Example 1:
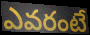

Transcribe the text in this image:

ఎవరంటే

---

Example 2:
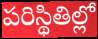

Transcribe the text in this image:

పరిస్థితిల్లో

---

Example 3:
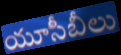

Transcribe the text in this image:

యూసీబీలు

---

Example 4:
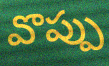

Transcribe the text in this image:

వొప్పు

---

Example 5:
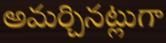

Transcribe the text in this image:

అమర్చినట్లుగా